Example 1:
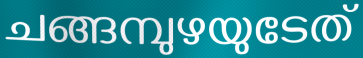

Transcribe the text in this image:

ചങ്ങമ്പുഴയുടേത്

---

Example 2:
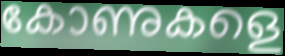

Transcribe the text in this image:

കോണുകളെ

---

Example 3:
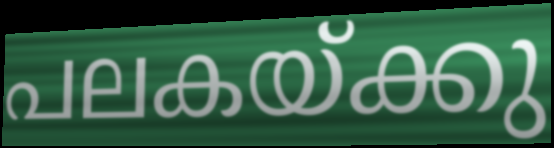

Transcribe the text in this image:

പലകയ്ക്കു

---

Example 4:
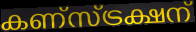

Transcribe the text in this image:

കണ്സ്ട്രക്ഷന്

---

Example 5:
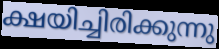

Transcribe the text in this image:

ക്ഷയിച്ചിരിക്കുന്നു